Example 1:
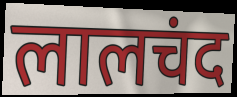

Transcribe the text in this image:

लालचंद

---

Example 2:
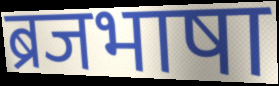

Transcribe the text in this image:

ब्रजभाषा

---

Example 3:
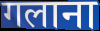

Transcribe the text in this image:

गलाना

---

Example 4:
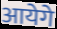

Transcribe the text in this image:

आयेगे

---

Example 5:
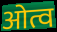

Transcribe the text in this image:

ओत्व